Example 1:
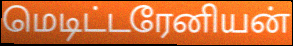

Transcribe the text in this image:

மெடிட்டரேனியன்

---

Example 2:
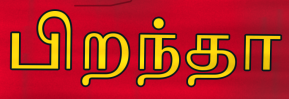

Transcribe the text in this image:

பிறந்தா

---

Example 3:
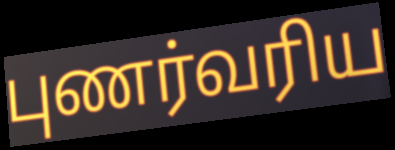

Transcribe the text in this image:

புணர்வரிய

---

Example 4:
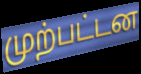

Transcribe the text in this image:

முற்பட்டன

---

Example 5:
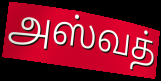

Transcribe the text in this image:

அஸ்வத்